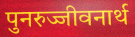
पुनरुज्जीवनार्थ